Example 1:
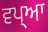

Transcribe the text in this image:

ਵਪ੍ਆ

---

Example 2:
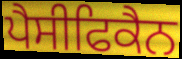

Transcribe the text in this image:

ਪੈਸੀਫਿਕੈਨ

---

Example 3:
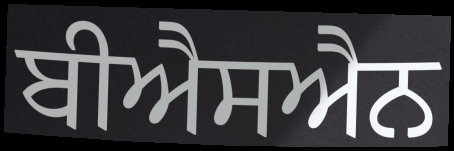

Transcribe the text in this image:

ਬੀਐਸਐਨ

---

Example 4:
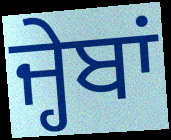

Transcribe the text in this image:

ਜ੍ਹੇਬਾਂ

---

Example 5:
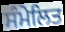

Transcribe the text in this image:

ਸੰਮੇਲਿਤ